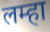
लम्हा